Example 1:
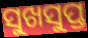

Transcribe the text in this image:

ସୁଖସୁପ୍ତ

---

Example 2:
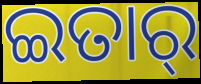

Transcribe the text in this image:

ଇତାର୍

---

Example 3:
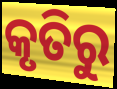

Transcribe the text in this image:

କୃତିରୁ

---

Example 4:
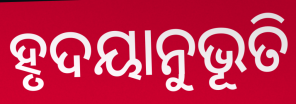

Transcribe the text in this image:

ହୃଦୟାନୁଭୂତି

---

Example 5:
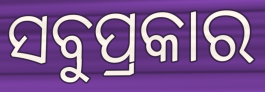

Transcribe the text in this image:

ସବୁପ୍ରକାର